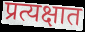
प्रत्यक्षात